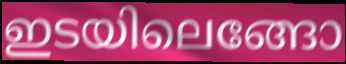
ഇടയിലെങ്ങോ